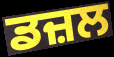
ਡਜ਼ਲ